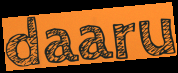
daaru